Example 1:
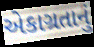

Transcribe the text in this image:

એકાગ્રતાનું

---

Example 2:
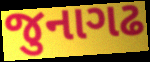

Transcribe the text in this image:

જુનાગઢ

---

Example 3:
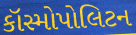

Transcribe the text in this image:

કૉસ્મોપોલિટન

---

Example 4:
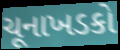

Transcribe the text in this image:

ચૂનાખડકો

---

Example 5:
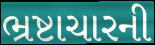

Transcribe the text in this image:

ભ્રષ્ટાચારની